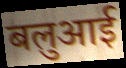
बलुआई